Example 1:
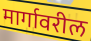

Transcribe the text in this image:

मार्गावरील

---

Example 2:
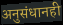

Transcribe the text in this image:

अनुसंधानही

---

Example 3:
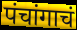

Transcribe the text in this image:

पंचांगाचं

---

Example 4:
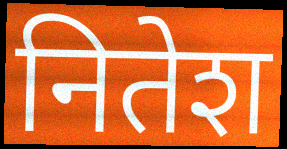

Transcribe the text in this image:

नितेश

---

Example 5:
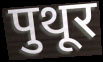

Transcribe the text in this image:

पुथूर